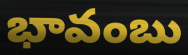
భావంబు